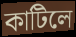
কাটিলে